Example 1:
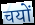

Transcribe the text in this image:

चयों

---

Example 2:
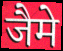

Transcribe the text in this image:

जैमे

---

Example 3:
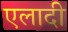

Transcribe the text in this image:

एलादी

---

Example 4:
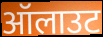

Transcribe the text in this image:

ऑलाउट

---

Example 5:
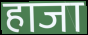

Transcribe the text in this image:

हाजा